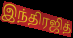
இந்திரஜித்